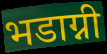
भडाग्नी